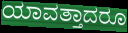
ಯಾವತ್ತಾದರೂ